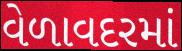
વેળાવદરમાં